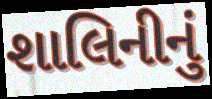
શાલિનીનું